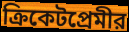
ক্রিকেটপ্রেমীর